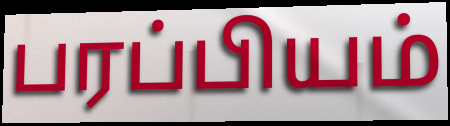
பரப்பியம்